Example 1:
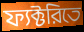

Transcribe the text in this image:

ফ্যক্টরিতে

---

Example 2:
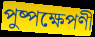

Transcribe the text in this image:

পুষ্পক্ষেপণী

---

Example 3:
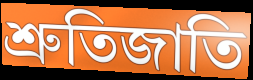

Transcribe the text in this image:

শ্রুতিজাতি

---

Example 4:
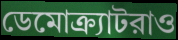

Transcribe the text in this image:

ডেমোক্র্যাটরাও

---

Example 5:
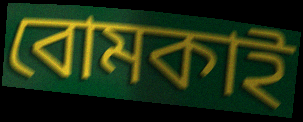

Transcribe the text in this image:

বোমকাই